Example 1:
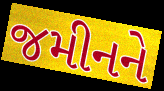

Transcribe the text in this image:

જમીનને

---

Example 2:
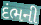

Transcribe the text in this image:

દંભની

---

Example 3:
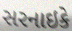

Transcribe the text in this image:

સરનાઇકે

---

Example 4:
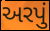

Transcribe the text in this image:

અરપું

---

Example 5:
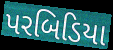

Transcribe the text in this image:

પરબિડિયા